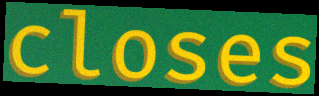
closes